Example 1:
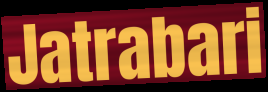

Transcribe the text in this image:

Jatrabari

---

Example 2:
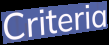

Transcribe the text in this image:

Criteria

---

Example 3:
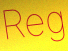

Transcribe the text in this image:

Reg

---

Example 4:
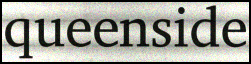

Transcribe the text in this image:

queenside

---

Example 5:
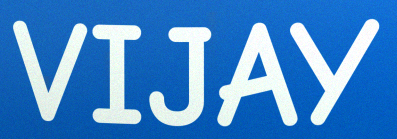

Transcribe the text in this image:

VIJAY